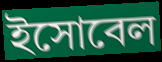
ইসোবেল